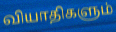
வியாதிகளும்